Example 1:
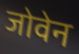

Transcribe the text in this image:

जोवेन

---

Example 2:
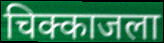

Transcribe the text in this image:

चिक्काजला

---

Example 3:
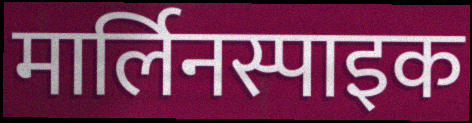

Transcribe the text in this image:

मार्लिनस्पाइक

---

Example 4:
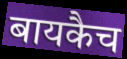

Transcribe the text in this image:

बायकैच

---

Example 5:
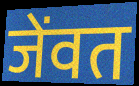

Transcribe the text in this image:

जेंवत